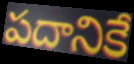
పదానికే